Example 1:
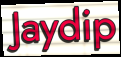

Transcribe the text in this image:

Jaydip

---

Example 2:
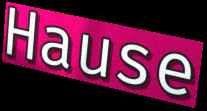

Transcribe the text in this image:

Hause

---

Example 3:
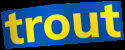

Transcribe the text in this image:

trout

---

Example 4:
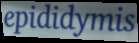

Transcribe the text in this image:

epididymis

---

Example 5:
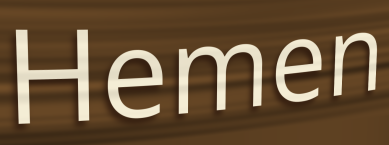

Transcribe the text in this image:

Hemen